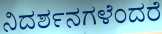
ನಿದರ್ಶನಗಳೆಂದರೆ